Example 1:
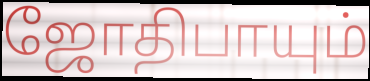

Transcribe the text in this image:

ஜோதிபாயும்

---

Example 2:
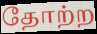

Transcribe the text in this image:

தோற்ற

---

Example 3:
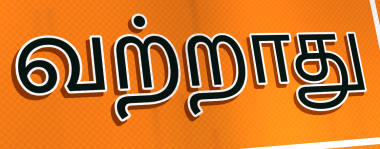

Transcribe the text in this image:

வற்றாது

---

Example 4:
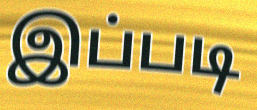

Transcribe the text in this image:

இப்படி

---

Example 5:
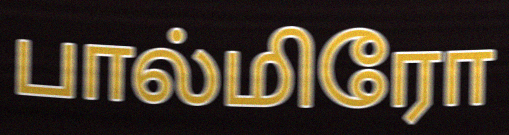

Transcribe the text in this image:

பால்மிரோ